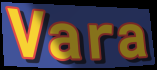
Vara